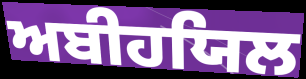
ਅਬੀਹਯਿਲ